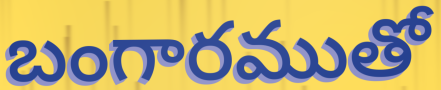
బంగారముతో